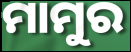
ମାମୁର